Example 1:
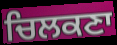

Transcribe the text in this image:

ਚਿਲਕਣਾ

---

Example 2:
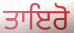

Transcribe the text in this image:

ਤਾਇਰੋ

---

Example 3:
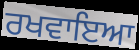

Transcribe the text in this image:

ਰਖਵਾਇਆ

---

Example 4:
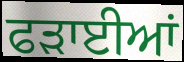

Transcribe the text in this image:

ਫੜਾਈਆਂ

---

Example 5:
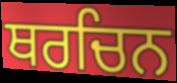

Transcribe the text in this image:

ਥਰਚਿਨ